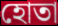
হোতা